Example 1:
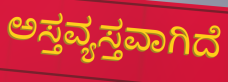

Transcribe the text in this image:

ಅಸ್ತವ್ಯಸ್ತವಾಗಿದೆ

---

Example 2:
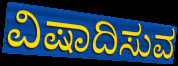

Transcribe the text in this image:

ವಿಷಾದಿಸುವ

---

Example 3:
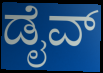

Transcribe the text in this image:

ಡೈವ್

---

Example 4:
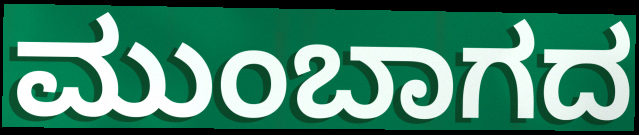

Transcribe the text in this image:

ಮುಂಬಾಗದ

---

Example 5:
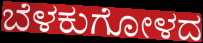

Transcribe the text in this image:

ಬೆಳಕುಗೋಳದ